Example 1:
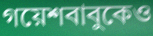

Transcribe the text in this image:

গয়েশবাবুকেও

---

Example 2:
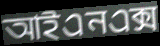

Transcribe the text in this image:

আইএনএক্স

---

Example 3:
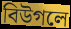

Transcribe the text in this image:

বিউগলে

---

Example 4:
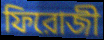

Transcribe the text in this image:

ফিরোজী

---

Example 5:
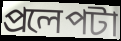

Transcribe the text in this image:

প্রলেপটা